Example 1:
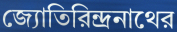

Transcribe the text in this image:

জ্যোতিরিন্দ্রনাথের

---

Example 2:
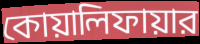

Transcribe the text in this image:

কোয়ালিফায়ার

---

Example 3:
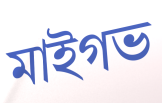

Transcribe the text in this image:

মাইগভ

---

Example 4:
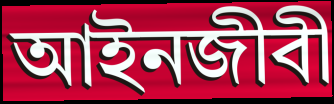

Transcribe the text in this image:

আইনজীবী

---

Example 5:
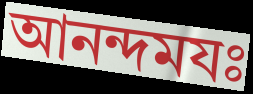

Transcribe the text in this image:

আনন্দমযঃ